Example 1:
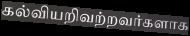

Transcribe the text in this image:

கல்வியறிவற்றவர்களாக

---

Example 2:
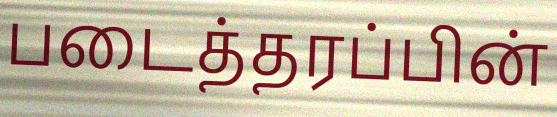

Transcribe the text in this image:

படைத்தரப்பின்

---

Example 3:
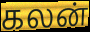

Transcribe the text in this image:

கலன்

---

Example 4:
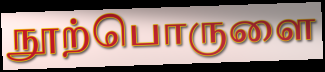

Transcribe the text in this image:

நூற்பொருளை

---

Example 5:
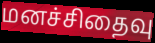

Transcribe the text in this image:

மனச்சிதைவு